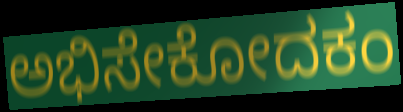
ಅಭಿಸೇಕೋದಕಂ